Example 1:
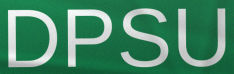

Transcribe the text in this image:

DPSU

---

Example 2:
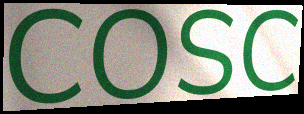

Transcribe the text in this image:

COSC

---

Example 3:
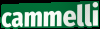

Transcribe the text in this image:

cammelli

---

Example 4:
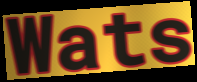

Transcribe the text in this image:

Wats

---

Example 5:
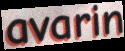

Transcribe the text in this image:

avarin